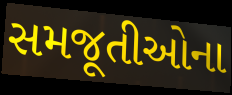
સમજૂતીઓના